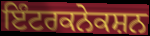
ਇੰਟਰਕਨੇਕਸ਼ਨ